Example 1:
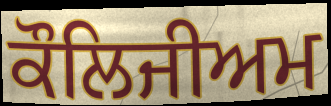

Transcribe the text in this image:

ਕੌਲਿਜੀਅਮ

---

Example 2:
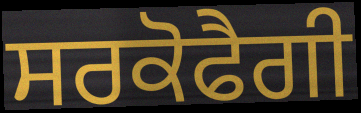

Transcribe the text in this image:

ਸਰਕੋਫੈਗੀ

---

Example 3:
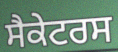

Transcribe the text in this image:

ਸੈਕੇਟਰਸ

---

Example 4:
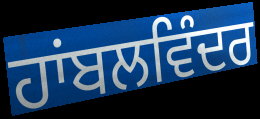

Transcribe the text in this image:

ਹਾਂਬਲਵਿੰਦਰ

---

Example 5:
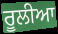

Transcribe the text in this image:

ਰੂਲੀਆ